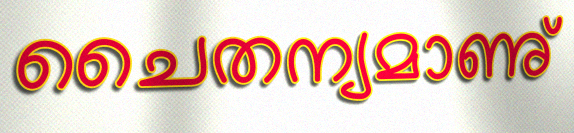
ചൈതന്യമാണു്